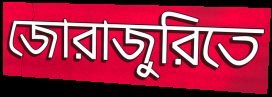
জোরাজুরিতে